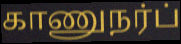
காணுநர்ப்